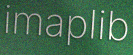
imaplib